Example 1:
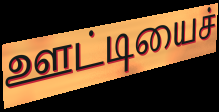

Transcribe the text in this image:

ஊட்டியைச்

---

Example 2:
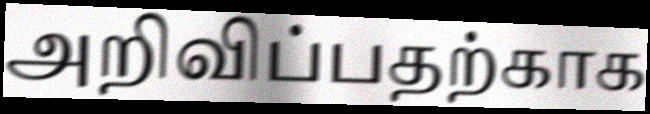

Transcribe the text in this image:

அறிவிப்பதற்காக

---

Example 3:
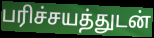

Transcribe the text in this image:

பரிச்சயத்துடன்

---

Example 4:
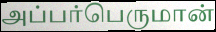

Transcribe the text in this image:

அப்பர்பெருமான்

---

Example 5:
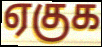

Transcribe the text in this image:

ஏகுக